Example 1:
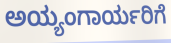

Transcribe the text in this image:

ಅಯ್ಯಂಗಾರ್ಯರಿಗೆ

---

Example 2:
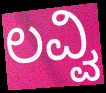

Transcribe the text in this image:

ಲವ್ವಿ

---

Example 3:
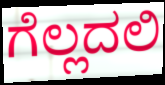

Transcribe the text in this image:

ಗೆಲ್ಲದಲಿ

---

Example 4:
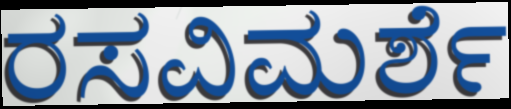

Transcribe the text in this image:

ರಸವಿಮರ್ಶೆ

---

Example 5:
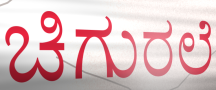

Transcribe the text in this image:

ಚಿಗುರಲೆ